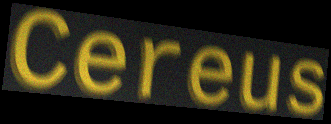
Cereus